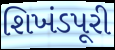
શિખંડપૂરી